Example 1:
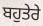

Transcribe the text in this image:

ਬਹੁਤੇਰੇ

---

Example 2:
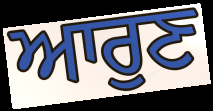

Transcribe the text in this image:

ਆਰੁਣ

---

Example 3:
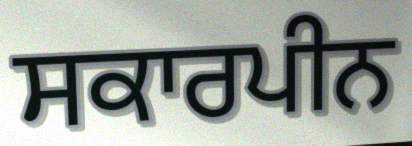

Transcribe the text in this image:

ਸਕਾਰਪੀਨ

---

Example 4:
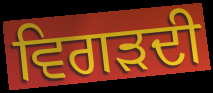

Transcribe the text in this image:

ਵਿਗੜਦੀ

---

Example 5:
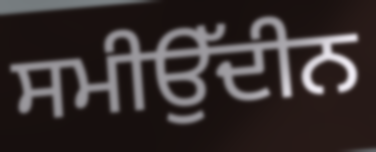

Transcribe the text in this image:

ਸਮੀਉੱਦੀਨ